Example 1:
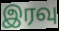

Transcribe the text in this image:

இரவு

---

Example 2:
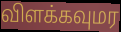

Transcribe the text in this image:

விளக்கவுமர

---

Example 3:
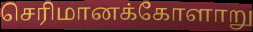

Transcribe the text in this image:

செரிமானக்கோளாறு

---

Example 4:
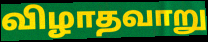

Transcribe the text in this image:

விழாதவாறு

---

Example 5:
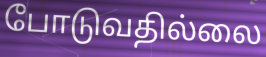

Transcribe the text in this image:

போடுவதில்லை